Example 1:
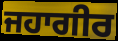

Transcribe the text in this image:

ਜਹਾਗੀਰ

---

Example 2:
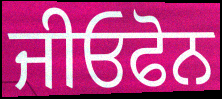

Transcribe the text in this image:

ਜੀਓਫੋਨ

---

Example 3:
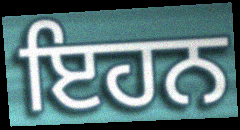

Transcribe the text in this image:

ਇਹਨ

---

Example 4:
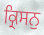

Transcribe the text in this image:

ਕ੍ਰਿਸਨੁ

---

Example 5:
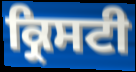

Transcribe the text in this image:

ਕ੍ਰਿਸਟੀ